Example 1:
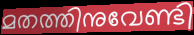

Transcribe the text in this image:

മതത്തിനുവേണ്ടി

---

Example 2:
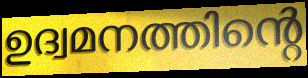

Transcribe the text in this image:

ഉദ്വമനത്തിന്റെ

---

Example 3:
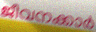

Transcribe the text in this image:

ജീവനക്കാർ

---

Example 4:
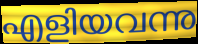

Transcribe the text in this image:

എളിയവന്നു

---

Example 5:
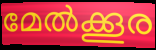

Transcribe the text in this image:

മേൽക്കൂര